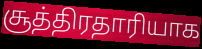
சூத்திரதாரியாக